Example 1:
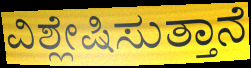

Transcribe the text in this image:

ವಿಶ್ಲೇಷಿಸುತ್ತಾನೆ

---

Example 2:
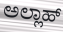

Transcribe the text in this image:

ಅಲ್ಲಾಹ್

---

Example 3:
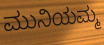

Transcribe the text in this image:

ಮುನಿಯಮ್ಮ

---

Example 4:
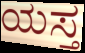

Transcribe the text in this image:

ಯಸ್ತ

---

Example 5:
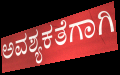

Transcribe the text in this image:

ಅವಶ್ಯಕತೆಗಾಗಿ